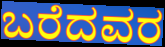
ಬರೆದವರ